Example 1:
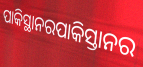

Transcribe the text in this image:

ପାକିସ୍ଥାନରପାକିସ୍ତାନର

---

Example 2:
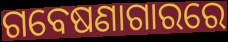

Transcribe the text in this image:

ଗବେଷଣାଗାରରେ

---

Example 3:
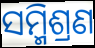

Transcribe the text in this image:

ସମ୍ମିଶ୍ରଣ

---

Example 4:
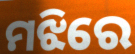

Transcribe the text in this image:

ମଝିରେ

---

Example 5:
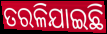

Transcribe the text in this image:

ତରଳିଯାଇଛି